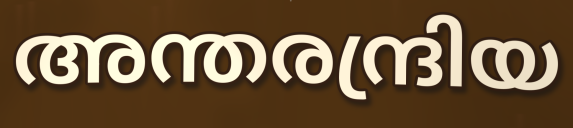
അന്തരന്ദ്രിയ